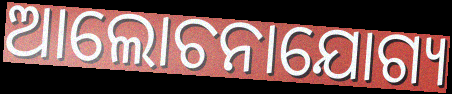
ଆଲୋଚନାଯୋଗ୍ୟ